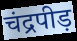
चंद्रपीड़